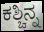
ಕಶ್ಚಿನ್ನ